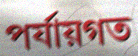
পর্যায়গত